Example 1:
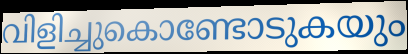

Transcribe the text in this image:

വിളിച്ചുകൊണ്ടോടുകയും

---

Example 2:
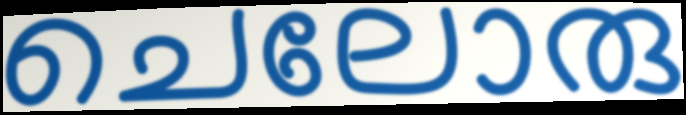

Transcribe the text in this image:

ചെലോരു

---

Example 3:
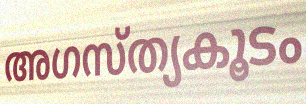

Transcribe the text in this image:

അഗസ്ത്യകൂടം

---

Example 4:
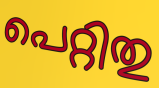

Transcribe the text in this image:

പെറ്റിതു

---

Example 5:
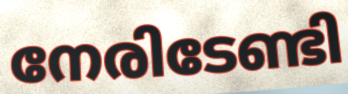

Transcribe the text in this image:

നേരിടേണ്ടി